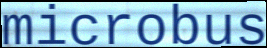
microbus